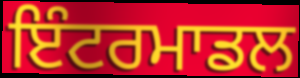
ਇੰਟਰਮਾਡਲ